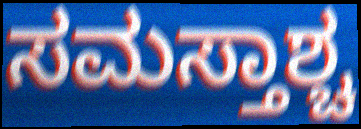
ಸಮಸ್ತಾಶ್ಚ